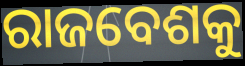
ରାଜବେଶକୁ